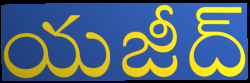
యజీద్